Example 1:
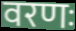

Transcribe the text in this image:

वरणः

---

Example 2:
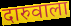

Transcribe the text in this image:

दारुवाला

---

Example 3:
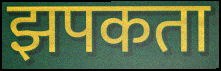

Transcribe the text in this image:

झपकता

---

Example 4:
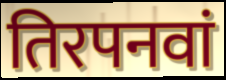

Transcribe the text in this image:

तिरपनवां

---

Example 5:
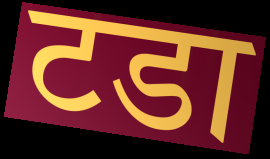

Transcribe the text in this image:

टडा